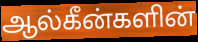
ஆல்கீன்களின்